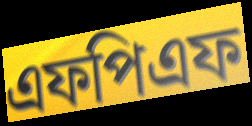
এফপিএফ